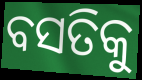
ବସତିକୁ